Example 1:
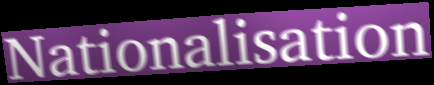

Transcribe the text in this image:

Nationalisation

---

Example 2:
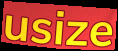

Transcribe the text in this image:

usize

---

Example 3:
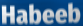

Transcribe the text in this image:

Habeeb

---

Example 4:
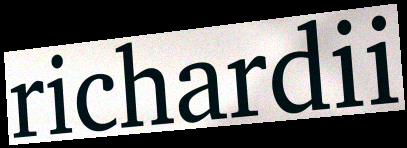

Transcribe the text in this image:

richardii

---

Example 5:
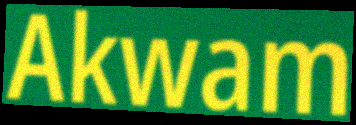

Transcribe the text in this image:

Akwam